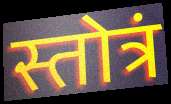
स्तोत्रं